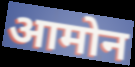
आमोन